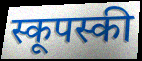
स्कूपस्की